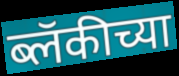
ब्लॅकीच्या